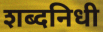
शब्दनिधी